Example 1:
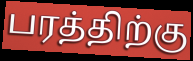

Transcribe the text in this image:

பரத்திற்கு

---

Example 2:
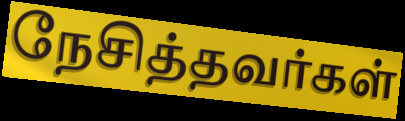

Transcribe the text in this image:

நேசித்தவர்கள்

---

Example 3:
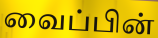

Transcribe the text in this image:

வைப்பின்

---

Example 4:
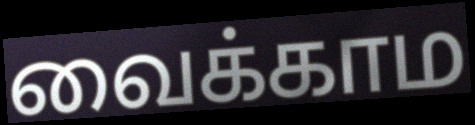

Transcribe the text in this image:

வைக்காம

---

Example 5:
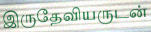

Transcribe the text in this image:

இருதேவியருடன்